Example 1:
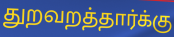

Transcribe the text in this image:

துறவறத்தார்க்கு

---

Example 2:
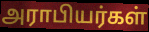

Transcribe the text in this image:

அராபியர்கள்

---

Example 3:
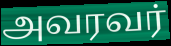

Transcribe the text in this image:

அவரவர்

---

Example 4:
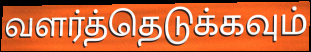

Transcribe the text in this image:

வளர்த்தெடுக்கவும்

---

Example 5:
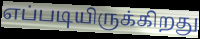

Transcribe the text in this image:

எப்படியிருக்கிறது